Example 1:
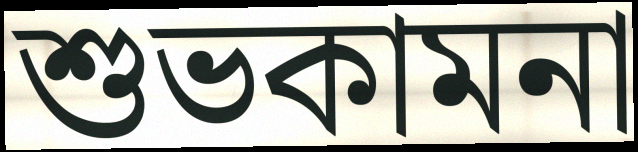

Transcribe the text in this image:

শুভকামনা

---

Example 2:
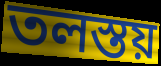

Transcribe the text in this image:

তলস্তয়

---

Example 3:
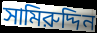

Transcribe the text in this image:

সামিরুদ্দিন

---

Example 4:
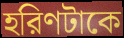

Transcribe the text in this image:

হরিণটাকে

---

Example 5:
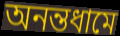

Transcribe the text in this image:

অনন্তধামে